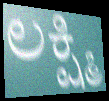
ಲಕ್ಷ್ಮಿ